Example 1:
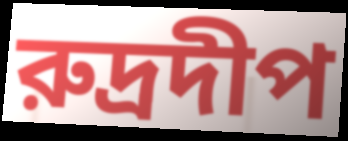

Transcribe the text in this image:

রুদ্রদীপ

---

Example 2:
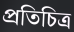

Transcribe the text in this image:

প্রতিচিত্র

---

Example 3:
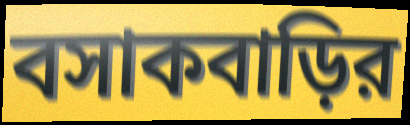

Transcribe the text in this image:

বসাকবাড়ির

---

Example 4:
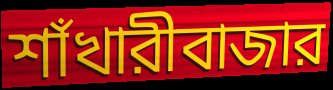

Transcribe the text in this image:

শাঁখারীবাজার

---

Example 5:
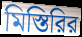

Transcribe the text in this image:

মিস্তিরির